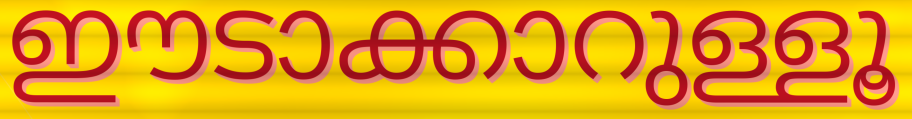
ഈടാക്കാറുള്ളൂ